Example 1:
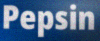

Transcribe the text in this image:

Pepsin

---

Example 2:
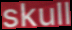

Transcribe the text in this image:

skull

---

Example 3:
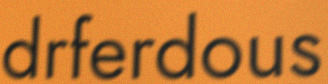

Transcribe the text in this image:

drferdous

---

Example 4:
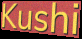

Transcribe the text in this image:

Kushi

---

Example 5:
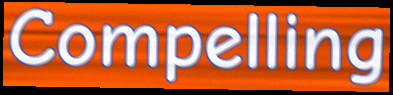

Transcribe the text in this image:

Compelling